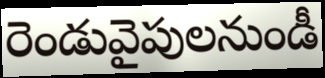
రెండువైపులనుండీ